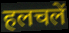
हलचलें